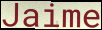
Jaime